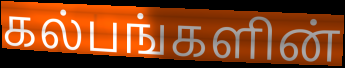
கல்பங்களின்